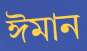
ঈমান